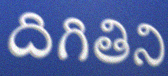
దిగితిని